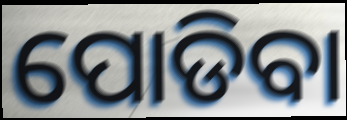
ପୋଡିବା